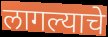
लागल्याचे